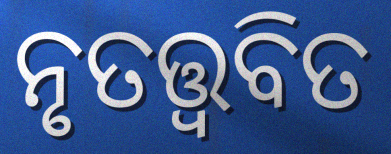
ନୃତତ୍ତ୍ୱବିତ